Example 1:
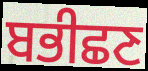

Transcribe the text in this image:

ਬਭੀਛਣ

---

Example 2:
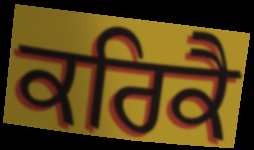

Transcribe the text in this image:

ਕਰਿਕੈ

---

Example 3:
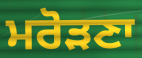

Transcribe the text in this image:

ਮਰੋੜਣਾ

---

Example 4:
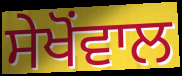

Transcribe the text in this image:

ਸੇਖੋਂਵਾਲ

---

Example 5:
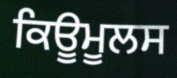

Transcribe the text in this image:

ਕਿਊਮੂਲਸ